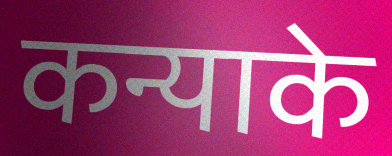
कन्याके